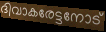
ദിവാകരേട്ടനോട്